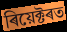
ৰিয়েক্টৰত